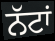
ਨੱਟਾਂ